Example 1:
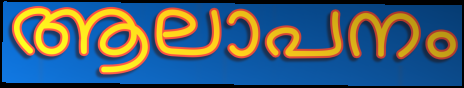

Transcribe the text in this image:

ആലാപനം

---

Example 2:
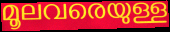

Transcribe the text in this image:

മൂലവരെയുള്ള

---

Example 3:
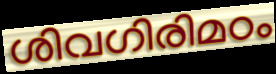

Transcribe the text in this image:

ശിവഗിരിമഠം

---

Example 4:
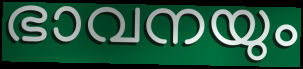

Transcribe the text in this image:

ഭാവനയും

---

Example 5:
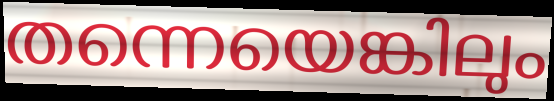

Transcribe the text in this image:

തന്നെയെങ്കിലും